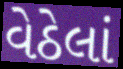
વેઠેલાં